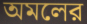
অমলের